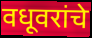
वधूवरांचे